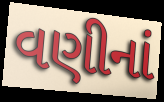
વણીનાં